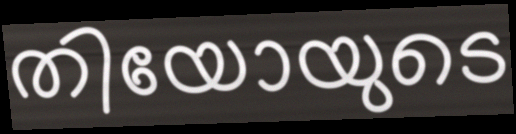
തിയോയുടെ